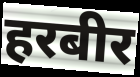
हरबीर